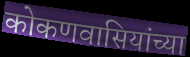
कोकणवासियांच्या